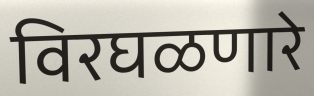
विरघळणारे